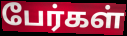
பேர்கள்